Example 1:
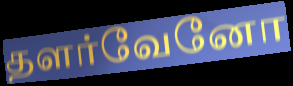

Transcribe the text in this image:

தளர்வேனோ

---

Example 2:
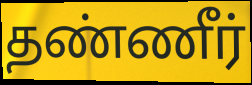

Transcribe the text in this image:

தண்ணீர்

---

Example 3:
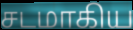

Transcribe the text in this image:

சடமாகிய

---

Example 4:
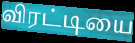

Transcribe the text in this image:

விரட்டியை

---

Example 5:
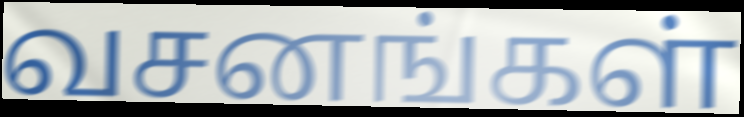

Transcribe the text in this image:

வசனங்கள்